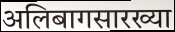
अलिबागसारख्या